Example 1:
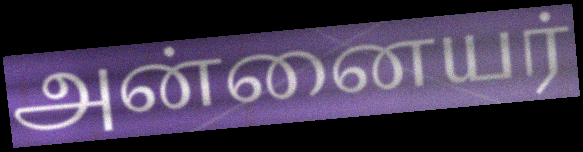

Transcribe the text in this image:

அன்னையர்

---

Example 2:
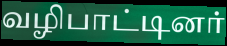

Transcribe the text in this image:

வழிபாட்டினர்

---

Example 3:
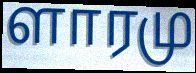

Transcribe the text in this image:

ளாரமு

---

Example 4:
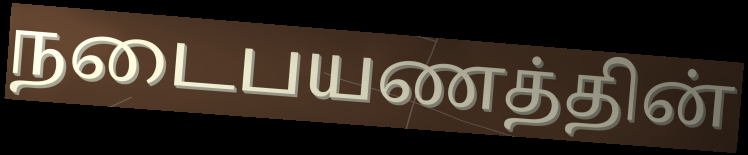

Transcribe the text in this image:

நடைபயணத்தின்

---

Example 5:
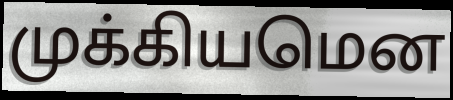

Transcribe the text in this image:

முக்கியமென